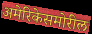
अमेरिकेसमोरील